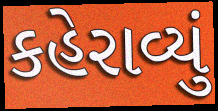
કહેરાવ્યું